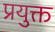
प्रयुक्त